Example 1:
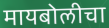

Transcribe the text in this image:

मायबोलीचा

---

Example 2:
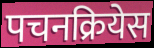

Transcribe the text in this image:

पचनक्रियेस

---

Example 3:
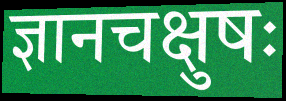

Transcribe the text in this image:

ज्ञानचक्षुषः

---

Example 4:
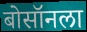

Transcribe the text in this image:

बोसॉनला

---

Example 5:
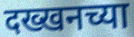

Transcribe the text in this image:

दख्खनच्या